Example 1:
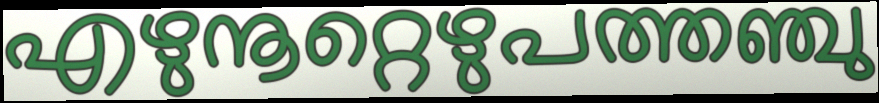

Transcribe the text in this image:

എഴുനൂറ്റെഴുപത്തഞ്ചു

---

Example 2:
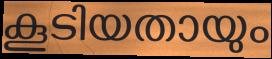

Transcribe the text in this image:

കൂടിയതായും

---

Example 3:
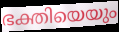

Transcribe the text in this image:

ഭക്തിയെയും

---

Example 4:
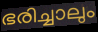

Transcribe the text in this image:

ഭരിച്ചാലും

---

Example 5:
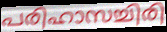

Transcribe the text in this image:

പരിഹാസച്ചിരി